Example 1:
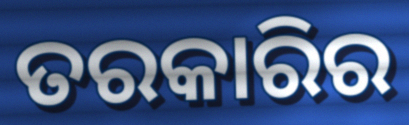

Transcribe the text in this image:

ତରକାରିର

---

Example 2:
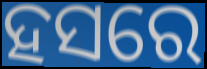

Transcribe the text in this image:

ହସରେ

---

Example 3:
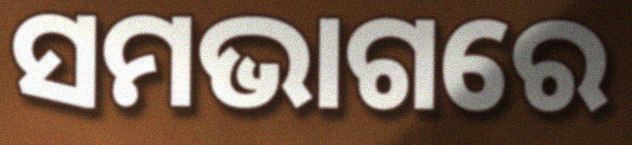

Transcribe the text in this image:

ସମଭାଗରେ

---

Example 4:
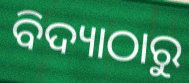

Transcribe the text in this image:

ବିଦ୍ୟାଠାରୁ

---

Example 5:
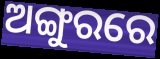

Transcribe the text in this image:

ଅଙ୍ଗୁରରେ